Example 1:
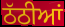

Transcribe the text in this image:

ਠੱਠੀਆਂ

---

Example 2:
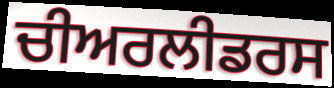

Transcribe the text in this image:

ਚੀਅਰਲੀਡਰਸ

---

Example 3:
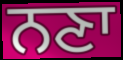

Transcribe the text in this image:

ਨਣਾ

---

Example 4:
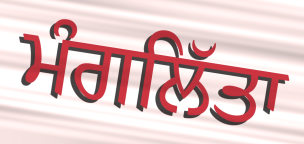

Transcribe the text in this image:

ਮੰਗਲਿੱਤਾ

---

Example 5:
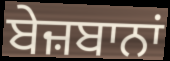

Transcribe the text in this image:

ਬੇਜ਼ਬਾਨਾਂ